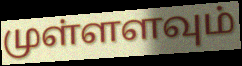
முள்ளளவும்